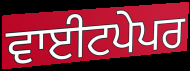
ਵਾਈਟਪੇਪਰ